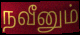
நவீனும்